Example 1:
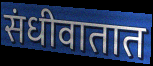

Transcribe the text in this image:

संधीवातात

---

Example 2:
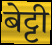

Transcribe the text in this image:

बेट्टी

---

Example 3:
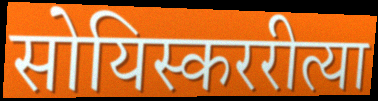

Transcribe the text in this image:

सोयिस्कररीत्या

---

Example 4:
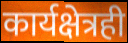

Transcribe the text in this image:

कार्यक्षेत्रही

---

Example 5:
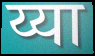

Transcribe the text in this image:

य्या